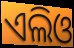
ଏଲିଓ